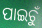
ପାଇଚୁଁ